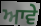
ਆਵੇ